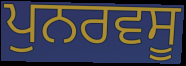
ਪੁਨਰਵਸੂ